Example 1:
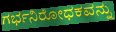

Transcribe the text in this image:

ಗರ್ಭನಿರೋಧಕವನ್ನು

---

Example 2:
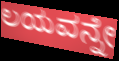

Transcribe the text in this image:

ಲಯವನ್ನೇ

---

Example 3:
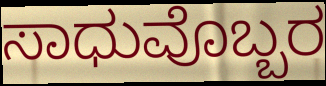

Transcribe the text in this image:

ಸಾಧುವೊಬ್ಬರ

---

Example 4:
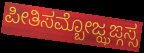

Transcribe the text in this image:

ಪೀತಿಸಮ್ಬೋಜ್ಝಙ್ಗಸ್ಸ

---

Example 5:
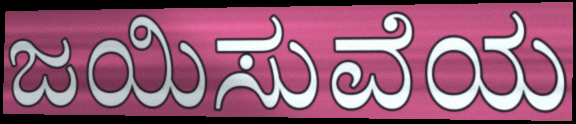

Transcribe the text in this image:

ಜಯಿಸುವೆಯ